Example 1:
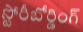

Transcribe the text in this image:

స్టోరీబోర్డింగ్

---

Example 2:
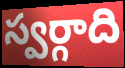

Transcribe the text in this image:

స్వర్గాది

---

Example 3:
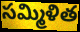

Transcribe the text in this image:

సమ్మిళిత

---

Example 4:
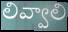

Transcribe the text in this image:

లివ్వాలి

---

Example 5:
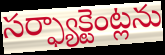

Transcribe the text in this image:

సర్ఫ్యాక్టెంట్లను